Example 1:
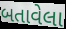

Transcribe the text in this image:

બતાવેલા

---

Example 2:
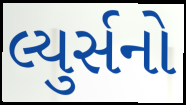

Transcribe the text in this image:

લ્યુર્સનો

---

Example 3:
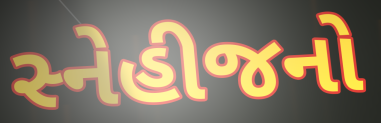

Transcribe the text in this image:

સ્નેહીજનો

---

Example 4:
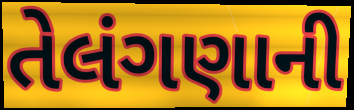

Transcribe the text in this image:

તેલંગણાની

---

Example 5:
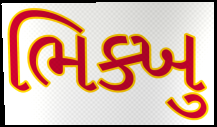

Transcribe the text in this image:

ભિક્ખુ